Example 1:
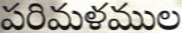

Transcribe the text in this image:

పరిమళముల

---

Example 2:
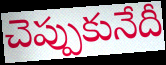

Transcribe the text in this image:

చెప్పుకునేదీ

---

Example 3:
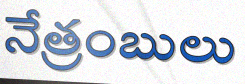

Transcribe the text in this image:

నేత్రంబులు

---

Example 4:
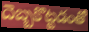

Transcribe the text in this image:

దెబ్బకొట్టడంతో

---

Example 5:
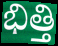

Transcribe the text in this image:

భిత్తి